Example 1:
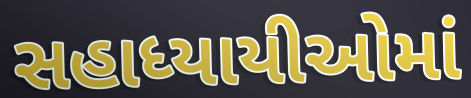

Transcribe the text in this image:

સહાધ્યાયીઓમાં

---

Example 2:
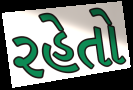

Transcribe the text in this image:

રહેતો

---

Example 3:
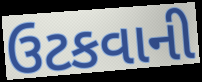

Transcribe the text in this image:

ઉટકવાની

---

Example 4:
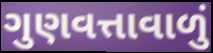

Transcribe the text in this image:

ગુણવત્તાવાળું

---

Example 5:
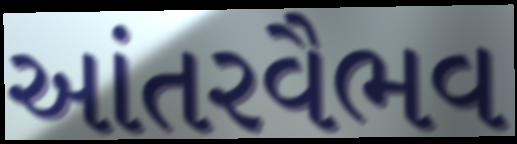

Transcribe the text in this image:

આંતરવૈભવ